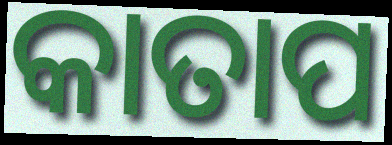
କାତାପ